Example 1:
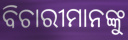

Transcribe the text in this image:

ବିଚାରୀମାନଙ୍କୁ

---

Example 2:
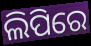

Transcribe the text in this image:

ଲିପିରେ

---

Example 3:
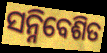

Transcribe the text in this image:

ସନ୍ନିବେଶିତ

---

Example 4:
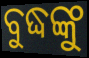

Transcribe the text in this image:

ବୁଦ୍ଧଙ୍କୁ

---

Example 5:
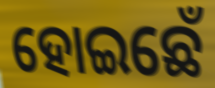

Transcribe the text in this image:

ହୋଇଛେଁ